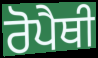
ਰੋਪੈਥੀ